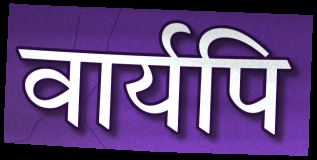
वार्यपि